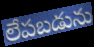
లేపబడును